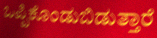
ಒಪ್ಪಿಕೊಂಡುಬಿಡುತ್ತಾರೆ